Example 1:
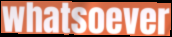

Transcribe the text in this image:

whatsoever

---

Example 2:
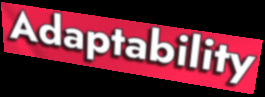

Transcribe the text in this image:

Adaptability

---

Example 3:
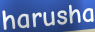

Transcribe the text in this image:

harusha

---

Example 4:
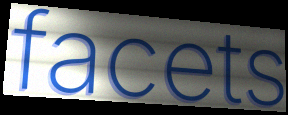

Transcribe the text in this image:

facets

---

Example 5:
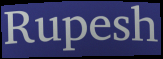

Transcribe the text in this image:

Rupesh